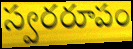
స్వరరూపం